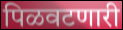
पिळवटणारी